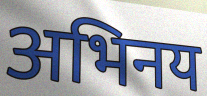
अभिनय